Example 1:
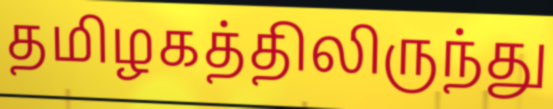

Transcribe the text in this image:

தமிழகத்திலிருந்து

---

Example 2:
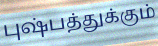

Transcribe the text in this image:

புஷ்பத்துக்கும்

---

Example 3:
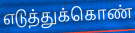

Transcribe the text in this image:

எடுத்துக்கொண்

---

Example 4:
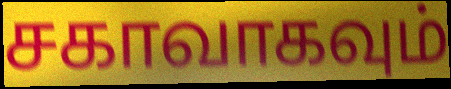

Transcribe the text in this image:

சகாவாகவும்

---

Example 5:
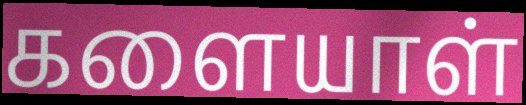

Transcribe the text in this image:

களையாள்